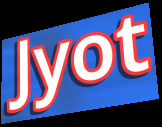
Jyot